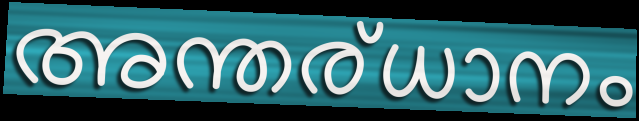
അന്തര്ധാനം